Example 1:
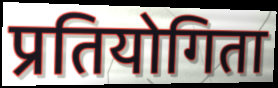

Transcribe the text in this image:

प्रतियोगिता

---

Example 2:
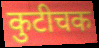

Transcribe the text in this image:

कुटीचक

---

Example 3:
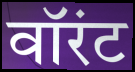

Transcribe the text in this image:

वॉरंट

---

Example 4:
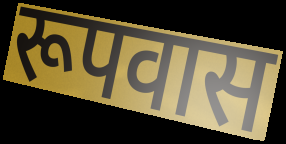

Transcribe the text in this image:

रूपवास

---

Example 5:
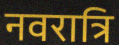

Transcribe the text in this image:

नवरात्रि